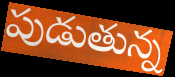
పుడుతున్న